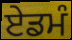
ਏਡਮੰ